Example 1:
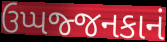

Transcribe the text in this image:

ઉપ્પજ્જનકાનં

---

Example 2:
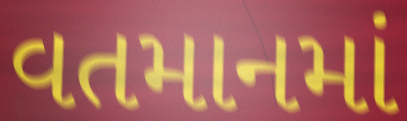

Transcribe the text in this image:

વતમાનમાં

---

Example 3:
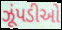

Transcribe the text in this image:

ઝૂંપડીઓ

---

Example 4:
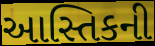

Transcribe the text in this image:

આસ્તિકની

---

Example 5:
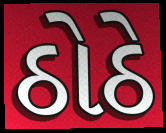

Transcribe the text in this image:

ઠોઠે